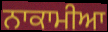
ਨਾਕਾਮੀਆ